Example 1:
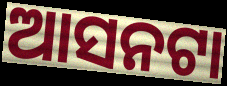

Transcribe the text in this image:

ଆସନଟା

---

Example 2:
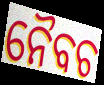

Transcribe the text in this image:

ନୈବଚ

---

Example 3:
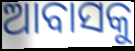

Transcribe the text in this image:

ଆବାସକୁ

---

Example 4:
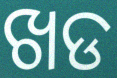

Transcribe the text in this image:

ଖଡ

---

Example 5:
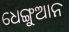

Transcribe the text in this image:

ଧେଙ୍ଗୁଆନ